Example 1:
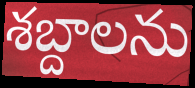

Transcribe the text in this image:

శబ్దాలను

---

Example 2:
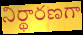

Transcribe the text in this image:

నిర్థారణగా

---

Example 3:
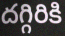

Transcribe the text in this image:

దగ్గిరికి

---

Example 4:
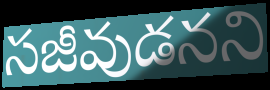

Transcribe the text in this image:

సజీవుడనని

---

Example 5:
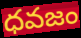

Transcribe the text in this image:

ధవజం